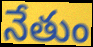
నేతుం